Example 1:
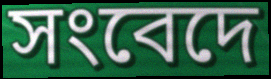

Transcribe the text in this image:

সংবেদে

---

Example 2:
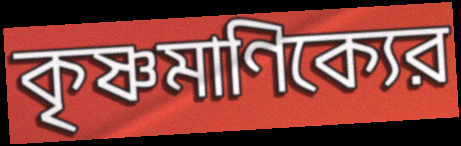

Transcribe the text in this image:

কৃষ্ণমাণিক্যের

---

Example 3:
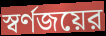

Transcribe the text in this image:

স্বর্ণজয়ের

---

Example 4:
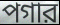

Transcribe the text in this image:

পগার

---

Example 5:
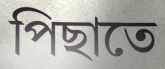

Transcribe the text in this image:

পিছাতে